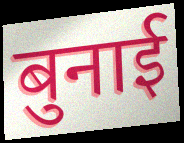
बुनाई